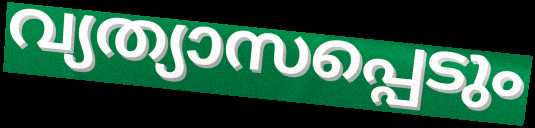
വ്യത്യാസപ്പെടും